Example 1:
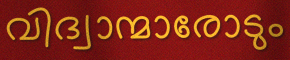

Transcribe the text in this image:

വിദ്വാന്മാരോടും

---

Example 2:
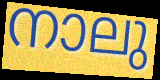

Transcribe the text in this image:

നാലു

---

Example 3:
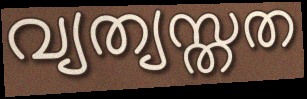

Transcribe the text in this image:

വ്യത്യസ്തത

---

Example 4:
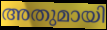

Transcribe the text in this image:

അതുമായി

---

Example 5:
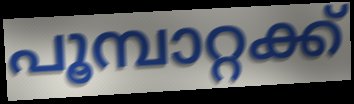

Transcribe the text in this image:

പൂമ്പാറ്റക്ക്